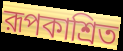
রূপকাশ্রিত